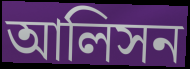
আলিসন